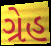
ગ્રેહ